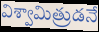
విశ్వామిత్రుడనే